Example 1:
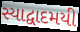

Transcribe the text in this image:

સ્યાદ્વાદમયી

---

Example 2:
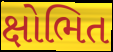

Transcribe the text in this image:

ક્ષોભિત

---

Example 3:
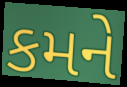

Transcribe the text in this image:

કમને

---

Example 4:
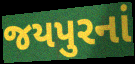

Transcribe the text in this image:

જયપુરનાં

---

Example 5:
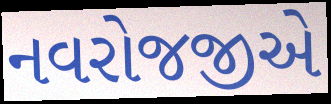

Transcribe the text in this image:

નવરોજજીએ